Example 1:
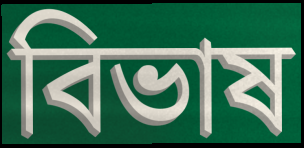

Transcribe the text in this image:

বিভাষ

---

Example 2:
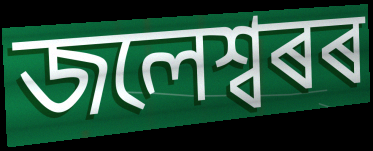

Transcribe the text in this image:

জলেশ্বৰৰ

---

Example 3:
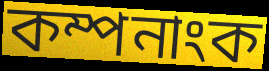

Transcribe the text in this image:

কম্পনাংক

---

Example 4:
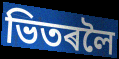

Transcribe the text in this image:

ভিতৰলৈ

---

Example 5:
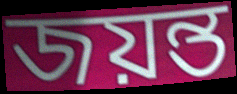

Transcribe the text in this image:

জয়ন্ত